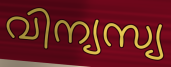
വിന്യസ്യ